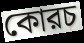
কোরচ